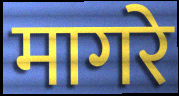
मागरे